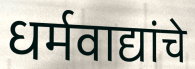
धर्मवाद्यांचे